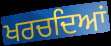
ਖਰਚਦਿਆਂ